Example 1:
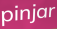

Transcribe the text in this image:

pinjar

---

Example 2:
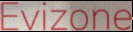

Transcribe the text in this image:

Evizone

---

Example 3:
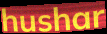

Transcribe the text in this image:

hushar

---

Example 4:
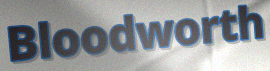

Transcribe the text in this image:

Bloodworth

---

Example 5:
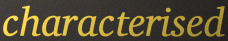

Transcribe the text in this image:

characterised